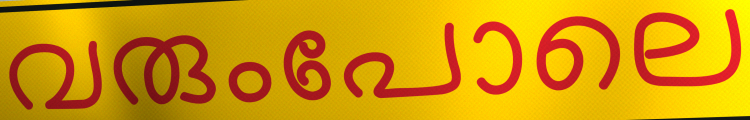
വരുംപോലെ